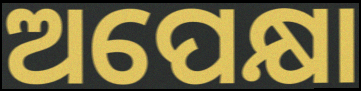
ଅପେକ୍ଷା